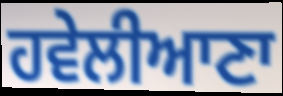
ਹਵੇਲੀਆਣਾ